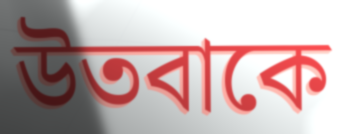
উতবাকে